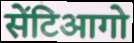
सेंटिआगो